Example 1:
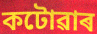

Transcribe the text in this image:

কটোৱাৰ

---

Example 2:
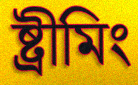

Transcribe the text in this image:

ষ্ট্ৰীমিং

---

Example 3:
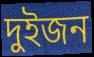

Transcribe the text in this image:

দুইজন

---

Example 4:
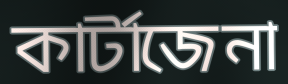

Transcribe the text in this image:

কাৰ্টাজেনা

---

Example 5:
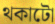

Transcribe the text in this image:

থকাটো